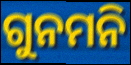
ଗୁନମନି